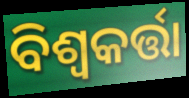
ବିଶ୍ୱକର୍ତ୍ତା